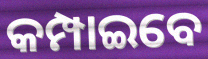
କମ୍ପାଇବେ